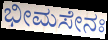
ಭೀಮಸೇನಃ